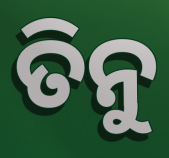
ତିନୁ